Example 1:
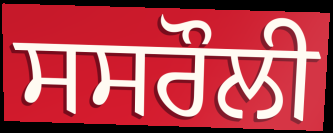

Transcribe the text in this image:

ਸਸਰੌਲੀ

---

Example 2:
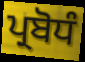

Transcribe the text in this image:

ਪ੍ਰਬੋਧੰ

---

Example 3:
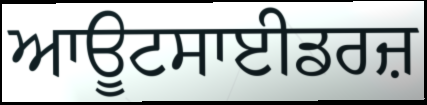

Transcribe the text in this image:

ਆਊਟਸਾਈਡਰਜ਼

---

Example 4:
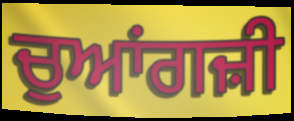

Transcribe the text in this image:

ਚੁਆਂਗਜ਼ੀ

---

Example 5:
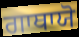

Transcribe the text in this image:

ਗਾਥਾਯੋ